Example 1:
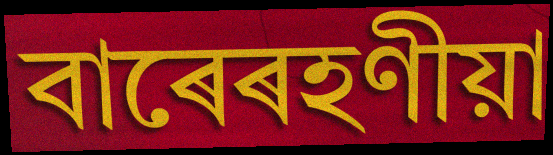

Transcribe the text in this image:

বাৰেৰহণীয়া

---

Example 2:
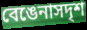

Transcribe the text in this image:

বেঙেনাসদৃশ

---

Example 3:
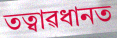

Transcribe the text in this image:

তত্বাৱধানত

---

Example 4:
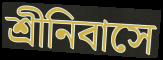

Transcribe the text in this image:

শ্ৰীনিবাসে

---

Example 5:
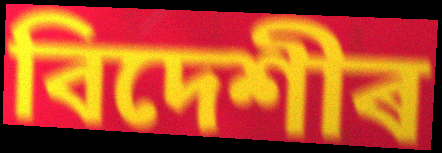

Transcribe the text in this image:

বিদেশীৰ